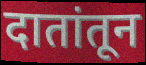
दातांतून